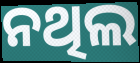
ନଥିଲ